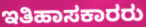
ಇತಿಹಾಸಕಾರರು